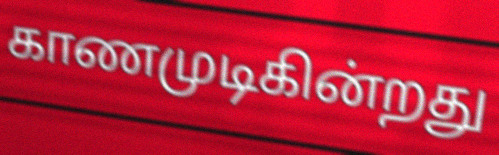
காணமுடிகின்றது